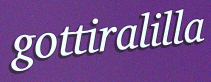
gottiralilla